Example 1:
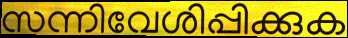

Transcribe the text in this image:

സന്നിവേശിപ്പിക്കുക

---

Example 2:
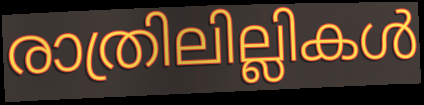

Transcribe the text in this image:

രാത്രിലില്ലികൾ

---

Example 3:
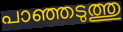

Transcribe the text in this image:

പാഞ്ഞടുത്തു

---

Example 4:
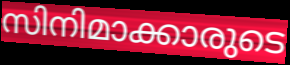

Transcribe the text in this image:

സിനിമാക്കാരുടെ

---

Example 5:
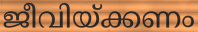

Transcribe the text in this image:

ജീവിയ്ക്കണം